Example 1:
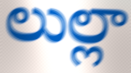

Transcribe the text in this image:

లుల్లా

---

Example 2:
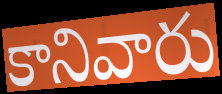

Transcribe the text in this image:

కానివారు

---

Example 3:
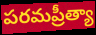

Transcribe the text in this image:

పరమప్రీత్యా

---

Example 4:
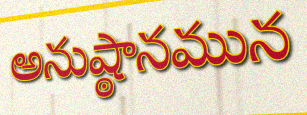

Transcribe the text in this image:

అనుష్ఠానమున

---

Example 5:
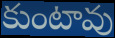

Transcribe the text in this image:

కుంటావు